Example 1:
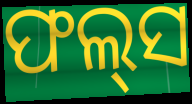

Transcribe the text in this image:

ଫଲ୍‌ସ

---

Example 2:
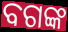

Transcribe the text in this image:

ବଗଙ୍କ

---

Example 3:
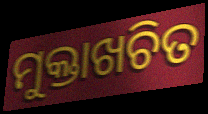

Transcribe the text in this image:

ମୁକ୍ତାଖଚିତ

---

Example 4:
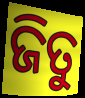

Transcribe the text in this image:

ଜିତୁ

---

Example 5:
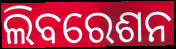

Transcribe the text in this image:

ଲିବରେଶନ